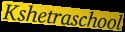
Kshetraschool